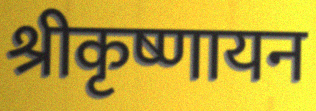
श्रीकृष्णायन